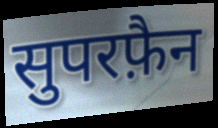
सुपरफ़ैन